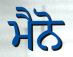
ਮੈਨੋ